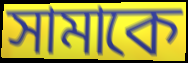
সামাকে